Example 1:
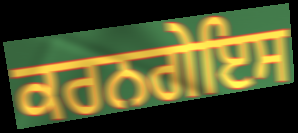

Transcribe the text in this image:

ਕਰਨਗੇਇਸ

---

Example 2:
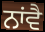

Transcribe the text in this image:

ਨਾਂਵੈ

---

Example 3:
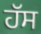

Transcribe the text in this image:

ਹੱਸ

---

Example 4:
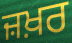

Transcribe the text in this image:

ਜ਼ਖ਼ਰ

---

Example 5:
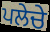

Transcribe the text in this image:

ਪਲੇਚੇ